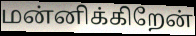
மன்னிக்கிறேன்